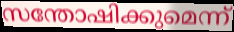
സന്തോഷിക്കുമെന്ന്